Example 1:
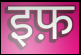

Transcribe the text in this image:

इफ़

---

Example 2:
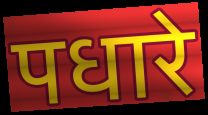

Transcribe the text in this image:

पधारे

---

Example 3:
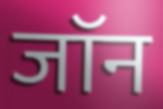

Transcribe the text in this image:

जॉन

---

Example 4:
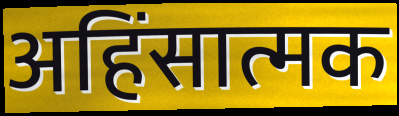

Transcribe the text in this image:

अहिंसात्मक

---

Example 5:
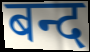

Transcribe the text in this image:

बन्द